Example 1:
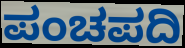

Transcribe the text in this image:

ಪಂಚಪದಿ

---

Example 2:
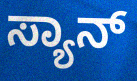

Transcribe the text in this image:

ಸ್ಯಾನ್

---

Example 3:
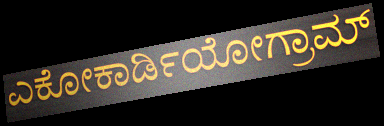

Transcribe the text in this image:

ಎಕೋಕಾರ್ಡಿಯೋಗ್ರಾಮ್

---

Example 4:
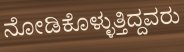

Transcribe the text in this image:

ನೋಡಿಕೊಳ್ಳುತ್ತಿದ್ದವರು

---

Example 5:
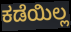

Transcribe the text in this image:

ಕಡೆಯಿಲ್ಲ